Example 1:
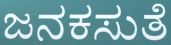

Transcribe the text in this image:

ಜನಕಸುತೆ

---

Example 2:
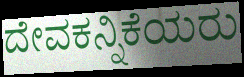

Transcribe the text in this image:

ದೇವಕನ್ನಿಕೆಯರು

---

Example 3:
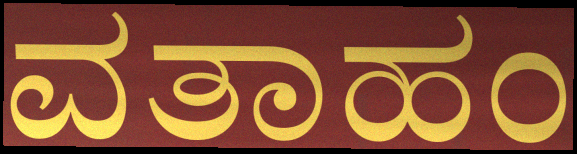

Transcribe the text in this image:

ವತಾಹಂ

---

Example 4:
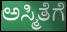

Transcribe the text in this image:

ಅಸ್ಮಿತೆಗೆ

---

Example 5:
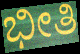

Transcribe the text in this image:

ಭೀತಿ